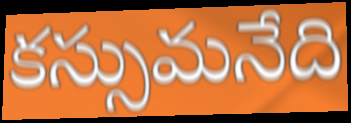
కస్సుమనేది